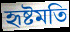
হৃষ্টমতি